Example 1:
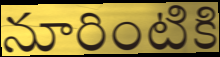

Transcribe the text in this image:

నూరింటికి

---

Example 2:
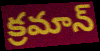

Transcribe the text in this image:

క్రమాన్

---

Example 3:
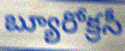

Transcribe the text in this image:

బ్యూరోక్రసీ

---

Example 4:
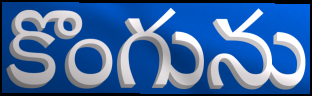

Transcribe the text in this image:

కొంగును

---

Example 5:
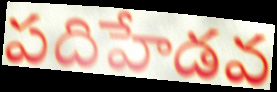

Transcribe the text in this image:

పదిహేడవ